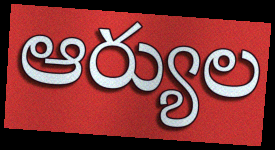
ఆర్యుల